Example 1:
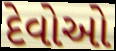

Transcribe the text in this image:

દેવોઓ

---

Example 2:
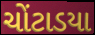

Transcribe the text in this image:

ચોંટાડયા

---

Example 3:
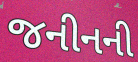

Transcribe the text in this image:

જનીનની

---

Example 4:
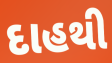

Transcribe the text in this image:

દાહથી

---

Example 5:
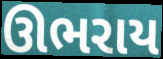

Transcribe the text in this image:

ઊભરાય